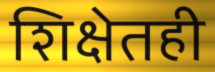
शिक्षेतही